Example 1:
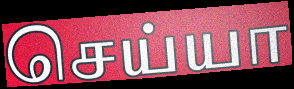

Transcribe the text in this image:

செய்யா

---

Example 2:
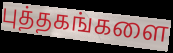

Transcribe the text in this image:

புத்தகங்களை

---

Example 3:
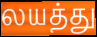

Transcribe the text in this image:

லயத்து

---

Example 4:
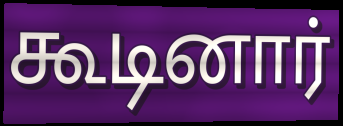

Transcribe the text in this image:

கூடினார்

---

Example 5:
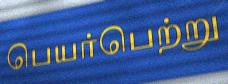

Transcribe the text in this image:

பெயர்பெற்று